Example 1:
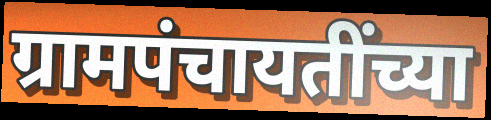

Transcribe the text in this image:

ग्रामपंचायतींच्या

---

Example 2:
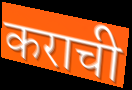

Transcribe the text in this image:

कराची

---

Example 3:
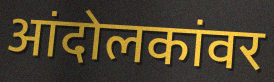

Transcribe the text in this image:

आंदोलकांवर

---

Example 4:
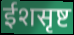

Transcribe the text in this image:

ईशसृष्ट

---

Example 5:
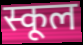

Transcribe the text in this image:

स्कूल